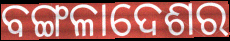
ବଙ୍ଗଳାଦେଶର